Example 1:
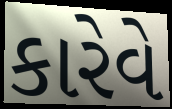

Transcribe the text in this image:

કારેવે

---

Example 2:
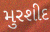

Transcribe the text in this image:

મુરશીદ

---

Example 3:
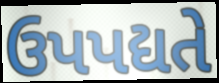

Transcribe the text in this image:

ઉપપદ્યતે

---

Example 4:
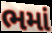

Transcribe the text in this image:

ભમાં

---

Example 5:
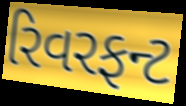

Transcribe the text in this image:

રિવરફન્ટ